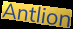
Antlion